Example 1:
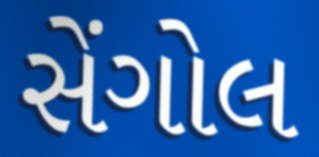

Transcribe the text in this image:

સેંગોલ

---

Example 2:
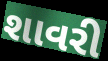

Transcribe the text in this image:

શાવરી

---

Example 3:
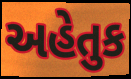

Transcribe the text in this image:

અહેતુક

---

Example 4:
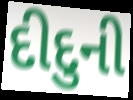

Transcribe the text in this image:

દીદુની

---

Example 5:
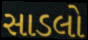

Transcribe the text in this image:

સાડલો